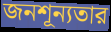
জনশূন্যতার